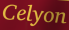
Celyon